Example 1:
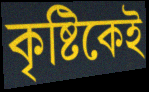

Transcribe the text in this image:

কৃষ্টিকেই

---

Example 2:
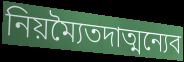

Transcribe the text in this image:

নিয়ম্যৈতদাত্মন্যেব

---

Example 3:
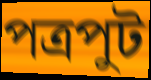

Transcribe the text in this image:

পত্রপুট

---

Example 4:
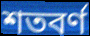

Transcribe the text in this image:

শতবর্ণ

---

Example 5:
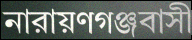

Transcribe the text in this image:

নারায়ণগঞ্জবাসী